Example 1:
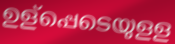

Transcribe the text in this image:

ഉള്പ്പെടെയുളള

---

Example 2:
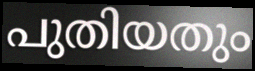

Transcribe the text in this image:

പുതിയതും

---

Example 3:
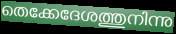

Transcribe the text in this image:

തെക്കേദേശത്തുനിന്നു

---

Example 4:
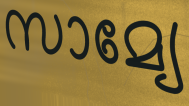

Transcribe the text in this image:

സാമ്യേ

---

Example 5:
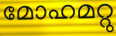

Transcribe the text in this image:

മോഹമറ്റു